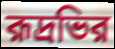
রূদ্রভির